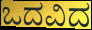
ಒದವಿದ